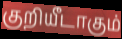
குறியீடாகும்